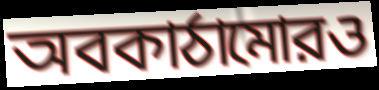
অবকাঠামোরও